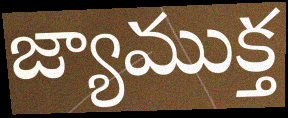
జ్యాముక్త